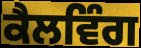
ਕੈਲਵਿੰਗ